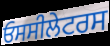
ਓਸਸੀਲੇਟਰਸ